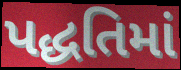
પદ્ધતિમાં